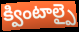
క్వింటాల్పై